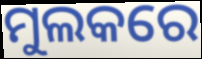
ମୁଲକରେ